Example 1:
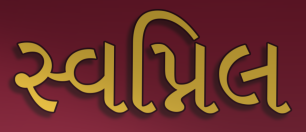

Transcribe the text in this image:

સ્વપ્નિલ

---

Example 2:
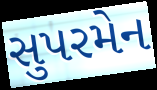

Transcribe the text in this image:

સુપરમેન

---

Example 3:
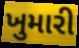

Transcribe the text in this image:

ખુમારી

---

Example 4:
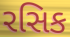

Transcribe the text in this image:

રસિક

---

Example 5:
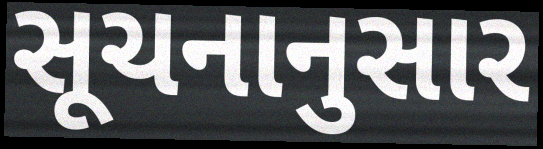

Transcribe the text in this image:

સૂચનાનુસાર